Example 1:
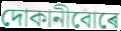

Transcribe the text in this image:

দোকানীবোৰে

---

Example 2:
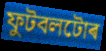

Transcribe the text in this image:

ফুটবলটোৰ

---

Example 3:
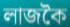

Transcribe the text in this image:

লাজকৈ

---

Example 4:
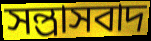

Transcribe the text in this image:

সন্ত্ৰাসবাদ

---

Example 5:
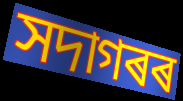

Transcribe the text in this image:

সদাগৰৰ